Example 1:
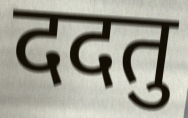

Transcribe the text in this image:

ददतु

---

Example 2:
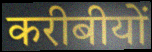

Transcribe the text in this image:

करीबीयों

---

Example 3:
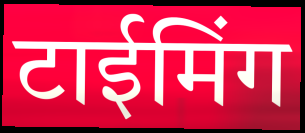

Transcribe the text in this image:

टाईमिंग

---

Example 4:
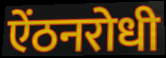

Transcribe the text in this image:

ऐंठनरोधी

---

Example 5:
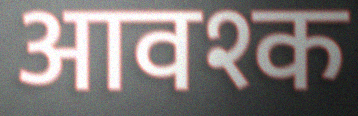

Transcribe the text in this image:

आवश्क